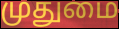
முதுமை